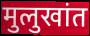
मुलुखांत